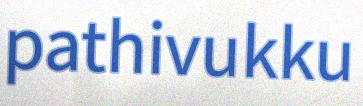
pathivukku